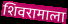
शिवरामाला